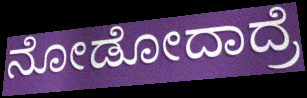
ನೋಡೋದಾದ್ರೆ